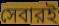
সেবারই